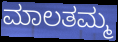
ಮಾಲತಮ್ಮ